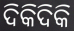
ଦିକିଦିକି